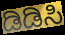
ಡಿಡಿಸಿ